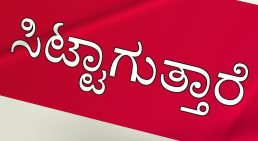
ಸಿಟ್ಟಾಗುತ್ತಾರೆ